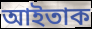
আইতাক